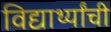
विद्यार्थ्यांची